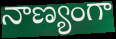
నాణ్యంగా